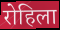
रोहिला